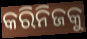
କରିନିଜକୁ